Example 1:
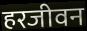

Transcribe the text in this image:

हरजीवन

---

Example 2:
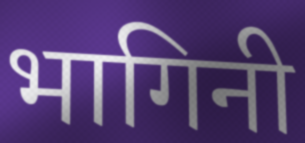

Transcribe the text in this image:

भागिनी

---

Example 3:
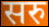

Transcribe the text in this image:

सरु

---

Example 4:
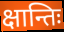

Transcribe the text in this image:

क्षान्तिः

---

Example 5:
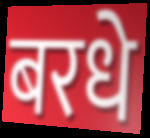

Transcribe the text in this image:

बरधे